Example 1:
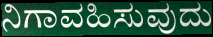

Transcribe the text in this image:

ನಿಗಾವಹಿಸುವುದು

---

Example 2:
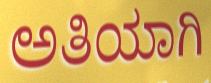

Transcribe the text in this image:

ಅತಿಯಾಗಿ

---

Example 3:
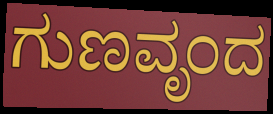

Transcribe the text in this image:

ಗುಣವೃಂದ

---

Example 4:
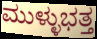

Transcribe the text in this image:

ಮುಳ್ಳುಭತ್ತ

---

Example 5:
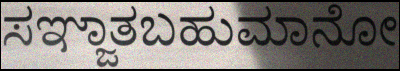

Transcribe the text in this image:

ಸಞ್ಜಾತಬಹುಮಾನೋ